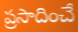
ప్రసాదించే